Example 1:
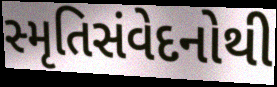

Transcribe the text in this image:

સ્મૃતિસંવેદનોથી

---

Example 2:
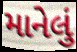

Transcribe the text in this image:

માનેલું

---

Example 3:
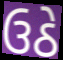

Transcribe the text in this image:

ઉઠે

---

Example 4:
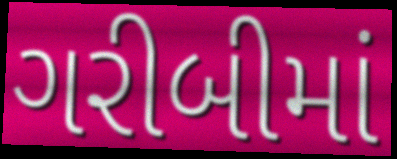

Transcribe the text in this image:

ગરીબીમાં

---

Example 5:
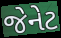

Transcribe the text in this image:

જેનેટ